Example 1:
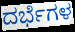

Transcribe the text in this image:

ದರ್ಭೆಗಳ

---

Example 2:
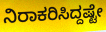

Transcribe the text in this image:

ನಿರಾಕರಿಸಿದ್ದಷ್ಟೇ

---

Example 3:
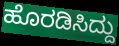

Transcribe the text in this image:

ಹೊರಡಿಸಿದ್ದು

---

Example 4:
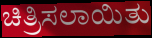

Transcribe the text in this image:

ಚಿತ್ರಿಸಲಾಯಿತು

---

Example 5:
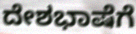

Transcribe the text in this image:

ದೇಶಭಾಷೆಗೆ